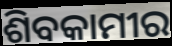
ଶିବକାମୀର